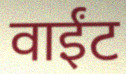
वाईंट